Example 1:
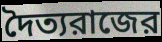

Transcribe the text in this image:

দৈত্যরাজের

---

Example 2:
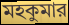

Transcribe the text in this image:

মহকুমার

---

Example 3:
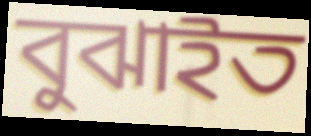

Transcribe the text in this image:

বুঝাইত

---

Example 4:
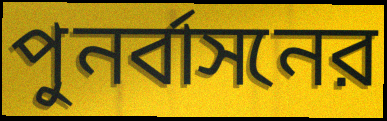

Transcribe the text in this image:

পুনর্বাসনের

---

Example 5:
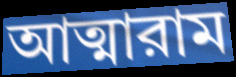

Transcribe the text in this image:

আত্মারাম